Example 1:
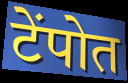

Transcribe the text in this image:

टेंपोत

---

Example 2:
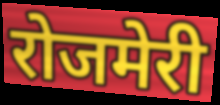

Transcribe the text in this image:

रोजमेरी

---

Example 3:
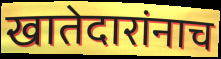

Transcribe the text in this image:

खातेदारांनाच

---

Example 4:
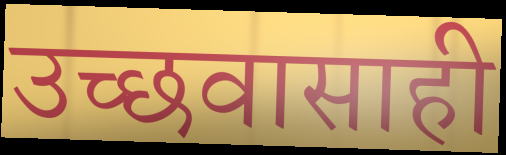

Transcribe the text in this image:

उच्छवासाही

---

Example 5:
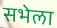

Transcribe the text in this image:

सभेला